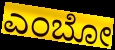
ಎಂಬೋ